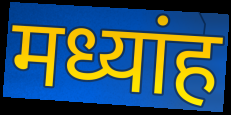
मध्यांह